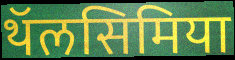
थॅलसिमिया